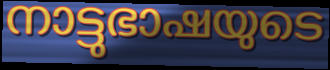
നാട്ടുഭാഷയുടെ